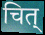
चित्